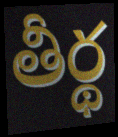
తీర్థ